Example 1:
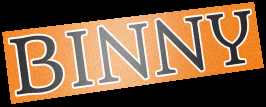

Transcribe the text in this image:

BINNY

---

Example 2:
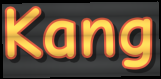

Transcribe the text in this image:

Kang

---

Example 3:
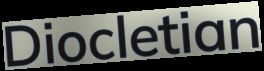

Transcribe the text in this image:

Diocletian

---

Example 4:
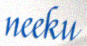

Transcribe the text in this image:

neeku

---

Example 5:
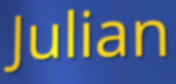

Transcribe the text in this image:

Julian